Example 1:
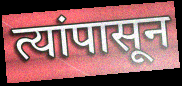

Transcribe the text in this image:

त्यांपासून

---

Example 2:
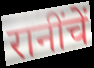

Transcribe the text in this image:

रानींचें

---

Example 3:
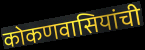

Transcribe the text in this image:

कोकणवासियांची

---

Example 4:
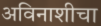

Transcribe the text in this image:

अविनाशीचा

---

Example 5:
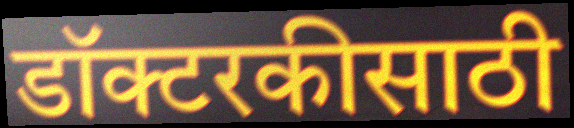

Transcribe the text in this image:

डॉक्टरकीसाठी